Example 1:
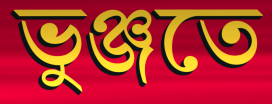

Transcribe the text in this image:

ভুঞ্জতে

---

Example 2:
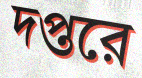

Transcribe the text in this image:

দপ্তরে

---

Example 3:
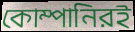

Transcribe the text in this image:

কোম্পানিরই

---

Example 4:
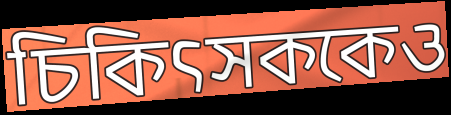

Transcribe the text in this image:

চিকিৎসককেও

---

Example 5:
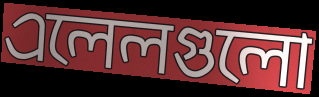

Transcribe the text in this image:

এলেলগুলো